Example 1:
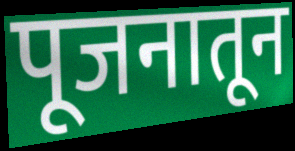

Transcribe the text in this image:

पूजनातून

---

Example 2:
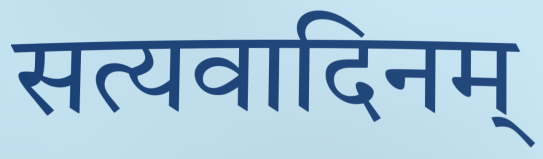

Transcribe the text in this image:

सत्यवादिनम्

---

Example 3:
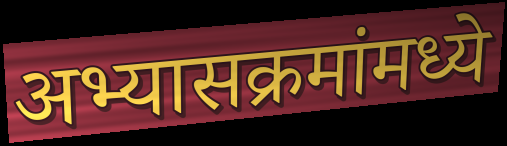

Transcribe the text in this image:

अभ्यासक्रमांमध्ये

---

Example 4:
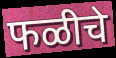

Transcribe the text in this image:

फळीचे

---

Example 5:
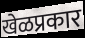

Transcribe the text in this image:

खेळप्रकार